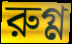
রুগ্ণ